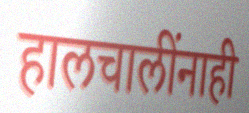
हालचालींनाही